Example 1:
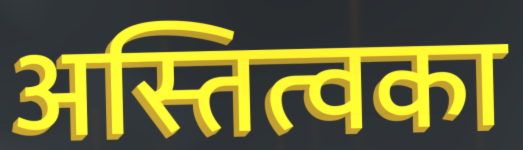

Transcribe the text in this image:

अस्तित्वका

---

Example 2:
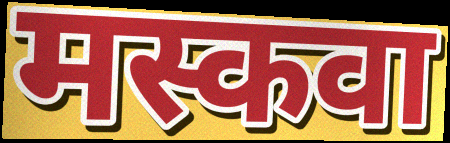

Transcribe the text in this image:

मस्कवा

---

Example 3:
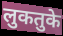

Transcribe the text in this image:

लुकतुके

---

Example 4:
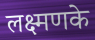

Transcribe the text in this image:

लक्ष्मणके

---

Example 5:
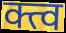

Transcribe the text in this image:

क्त्व